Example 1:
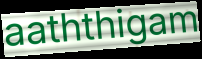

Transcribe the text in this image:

aaththigam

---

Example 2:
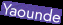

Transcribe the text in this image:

Yaounde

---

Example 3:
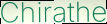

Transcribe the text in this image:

Chirathe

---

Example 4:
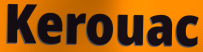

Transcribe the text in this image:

Kerouac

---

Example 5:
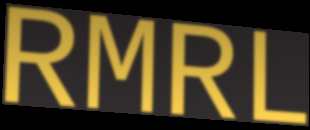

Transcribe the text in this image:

RMRL